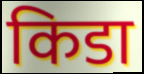
किडा